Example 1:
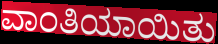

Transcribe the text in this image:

ವಾಂತಿಯಾಯಿತು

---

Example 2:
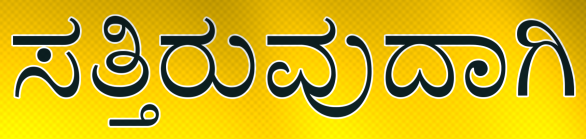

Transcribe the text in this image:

ಸತ್ತಿರುವುದಾಗಿ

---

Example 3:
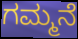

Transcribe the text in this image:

ಗಮ್ಮನೆ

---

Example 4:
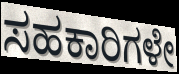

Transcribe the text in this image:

ಸಹಕಾರಿಗಳೇ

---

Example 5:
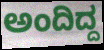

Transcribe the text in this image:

ಅಂದಿದ್ದ